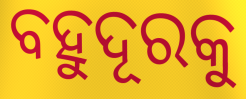
ବହୁଦୂରକୁ